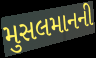
મુસલમાનની